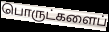
பொருட்களைப்